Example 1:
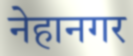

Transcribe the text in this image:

नेहानगर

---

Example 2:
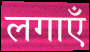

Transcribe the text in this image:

लगाएँ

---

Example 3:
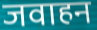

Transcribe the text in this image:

जवाहन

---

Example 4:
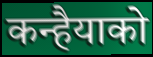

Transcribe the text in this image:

कन्हैयाको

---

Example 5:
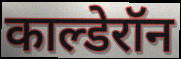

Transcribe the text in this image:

काल्डेरॉन